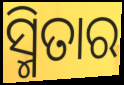
ସ୍ମିତାର